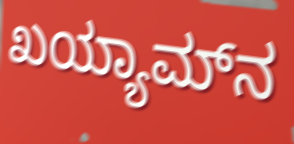
ಖಯ್ಯಾಮ್‌ನ